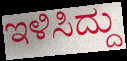
ಇಳಿಸಿದ್ದು